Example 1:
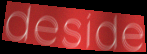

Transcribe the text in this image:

deside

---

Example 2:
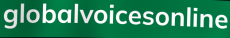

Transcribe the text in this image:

globalvoicesonline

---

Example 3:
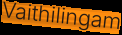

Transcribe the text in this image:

Vaithilingam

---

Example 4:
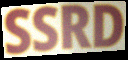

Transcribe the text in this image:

SSRD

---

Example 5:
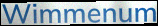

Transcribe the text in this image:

Wimmenum